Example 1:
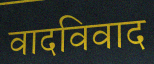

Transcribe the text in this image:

वादविवाद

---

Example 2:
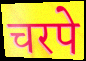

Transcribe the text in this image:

चरपे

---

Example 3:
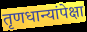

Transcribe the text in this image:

तृणधान्यांपेक्षा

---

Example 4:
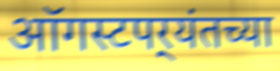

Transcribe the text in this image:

ऑगस्टपर्यंतच्या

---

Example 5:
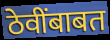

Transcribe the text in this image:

ठेवींबाबत